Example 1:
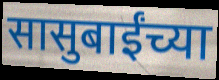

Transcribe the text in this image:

सासुबाईंच्या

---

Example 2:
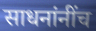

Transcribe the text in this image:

साधनांनींच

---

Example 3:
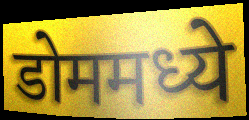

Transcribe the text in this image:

डोममध्ये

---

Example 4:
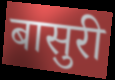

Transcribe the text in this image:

बासुरी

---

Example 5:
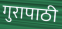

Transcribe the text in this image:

गुरापाठी